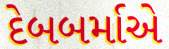
દેબબર્માએ